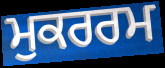
ਮੁਕਰਰਮ